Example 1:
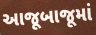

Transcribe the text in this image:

આજૂબાજૂમાં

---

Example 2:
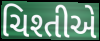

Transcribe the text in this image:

ચિશ્તીએ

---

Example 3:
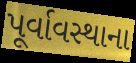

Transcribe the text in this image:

પૂર્વાવસ્થાના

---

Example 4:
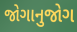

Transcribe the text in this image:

જોગાનુજોગ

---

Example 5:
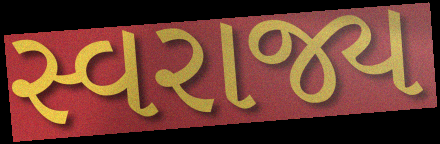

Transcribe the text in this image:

સ્વરાજ્ય